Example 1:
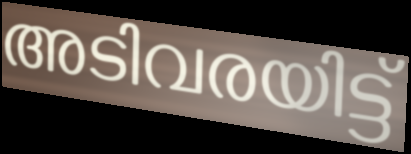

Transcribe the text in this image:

അടിവരയിട്ട്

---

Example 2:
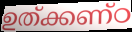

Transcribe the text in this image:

ഉത്ക്കണ്ഠ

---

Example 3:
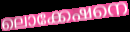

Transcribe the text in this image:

ലൊക്കേഷനെ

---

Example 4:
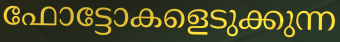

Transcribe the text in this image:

ഫോട്ടോകളെടുക്കുന്ന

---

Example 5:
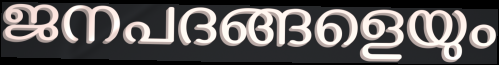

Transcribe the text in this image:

ജനപദങ്ങളെയും